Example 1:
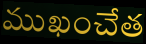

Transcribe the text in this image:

ముఖంచేత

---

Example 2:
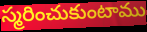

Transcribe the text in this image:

స్మరించుకుంటాము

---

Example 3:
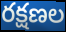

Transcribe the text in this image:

రక్షణల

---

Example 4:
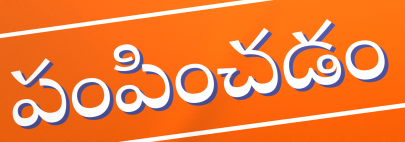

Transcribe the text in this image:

పంపించడం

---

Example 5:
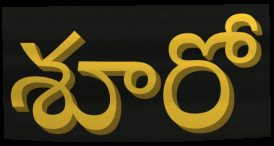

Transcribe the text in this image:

శూరో